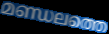
മണ്ഡലത്തെ